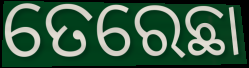
ତେରେଛା